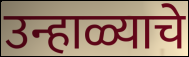
उन्हाळ्याचे